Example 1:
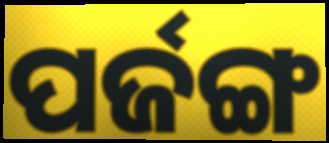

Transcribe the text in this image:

ପର୍ଜଙ୍ଗ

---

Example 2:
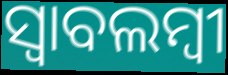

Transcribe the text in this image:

ସ୍ଵାବଲମ୍ଵୀ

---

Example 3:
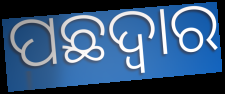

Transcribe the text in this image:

ପଛଦ୍ୱାର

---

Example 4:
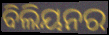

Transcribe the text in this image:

ବିଲିୟନର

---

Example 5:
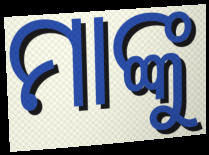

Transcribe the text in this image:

ମାଙ୍କୁ